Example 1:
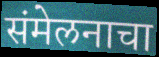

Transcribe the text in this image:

संमेलनाचा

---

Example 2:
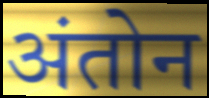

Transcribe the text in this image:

अंतोन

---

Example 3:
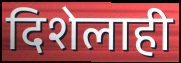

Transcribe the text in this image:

दिशेलाही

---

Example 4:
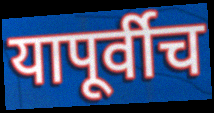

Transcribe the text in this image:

यापूर्वीच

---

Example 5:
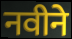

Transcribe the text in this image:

नवीने